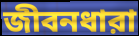
জীবনধারা